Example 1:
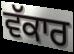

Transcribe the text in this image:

ਵੱਕਾਰ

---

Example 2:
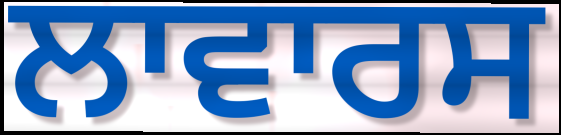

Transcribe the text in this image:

ਲਾਵਾਰਸ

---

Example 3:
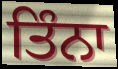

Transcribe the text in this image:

ਤਿੰਨਾ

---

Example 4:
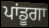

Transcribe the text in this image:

ਪਾਂਡੂਗਾ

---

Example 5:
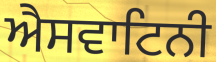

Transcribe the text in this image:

ਐਸਵਾਟਿਨੀ